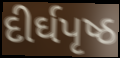
દીર્ઘપૃષ્ઠ